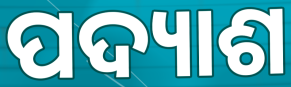
ପଦ୍ୟାଶ